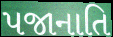
પજાનાતિ